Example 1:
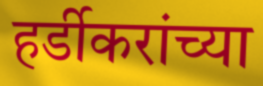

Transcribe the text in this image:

हर्डीकरांच्या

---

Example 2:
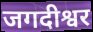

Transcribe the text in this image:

जगदीश्वर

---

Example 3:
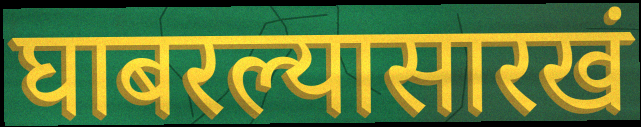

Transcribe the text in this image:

घाबरल्यासारखं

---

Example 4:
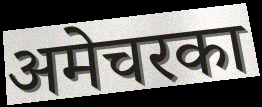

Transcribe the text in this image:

अमेचरका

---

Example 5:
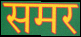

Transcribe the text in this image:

समर